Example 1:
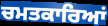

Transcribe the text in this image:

ਚਮਤਕਾਰਿਆਂ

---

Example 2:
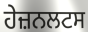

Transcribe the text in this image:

ਹੇਜ਼ਨਲਟਸ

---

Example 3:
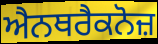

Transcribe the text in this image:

ਐਨਥਰੈਕਨੋਜ਼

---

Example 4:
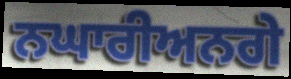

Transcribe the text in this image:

ਨਘਾਰੀਅਨਗੇ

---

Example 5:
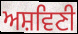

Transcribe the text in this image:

ਅਸ਼ਵਿਣੀ